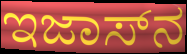
ಇಜಾಸ್‌ನ